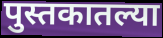
पुस्तकातल्या